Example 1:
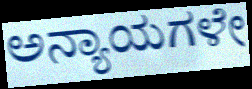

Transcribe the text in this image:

ಅನ್ಯಾಯಗಳೇ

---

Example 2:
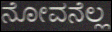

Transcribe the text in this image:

ನೋವನೆಲ್ಲ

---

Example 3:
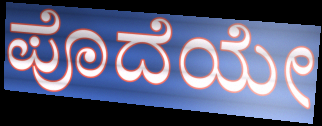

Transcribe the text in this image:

ಪೊದೆಯೇ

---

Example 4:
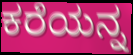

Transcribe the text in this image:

ಕರೆಯನ್ನ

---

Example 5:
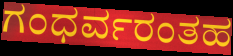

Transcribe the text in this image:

ಗಂಧರ್ವರಂತಹ